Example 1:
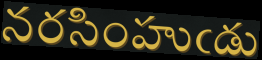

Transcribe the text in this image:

నరసింహుఁడు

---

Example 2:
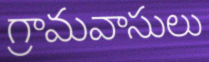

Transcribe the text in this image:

గ్రామవాసులు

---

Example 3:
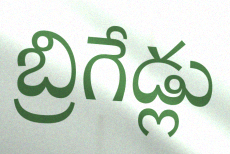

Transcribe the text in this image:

బ్రిగేడ్లు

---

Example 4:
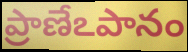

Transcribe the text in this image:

ప్రాణేఽపానం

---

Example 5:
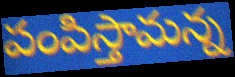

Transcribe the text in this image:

పంపిస్తామన్న